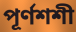
পূর্ণশশী